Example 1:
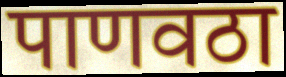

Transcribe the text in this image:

पाणवठा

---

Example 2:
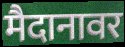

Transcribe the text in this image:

मैदानावर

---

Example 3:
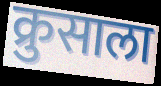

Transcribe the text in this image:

क्रुसाला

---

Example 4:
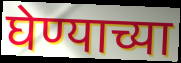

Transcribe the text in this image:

घेण्याच्या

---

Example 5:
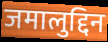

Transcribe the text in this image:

जमालुद्दिन